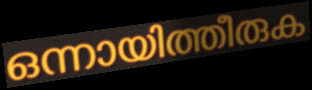
ഒന്നായിത്തീരുക